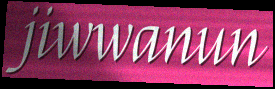
jiwwanun